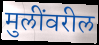
मुलींवरील